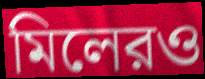
মিলেরও